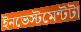
ইনভেস্টমেন্টটা